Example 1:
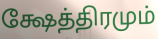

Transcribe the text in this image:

க்ஷேத்திரமும்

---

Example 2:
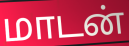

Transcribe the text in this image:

மாடன்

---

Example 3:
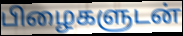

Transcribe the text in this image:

பிழைகளுடன்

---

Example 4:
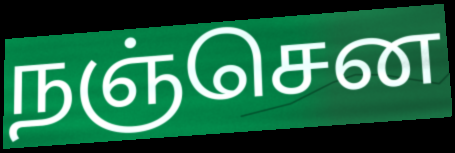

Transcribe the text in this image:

நஞ்சென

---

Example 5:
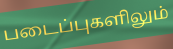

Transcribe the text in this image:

படைப்புகளிலும்